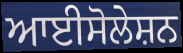
ਆਈਸੋਲੇਸ਼ਨ